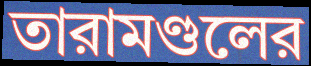
তারামণ্ডলের